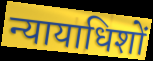
न्यायाधिशों